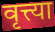
वृत्त्या